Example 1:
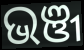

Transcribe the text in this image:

ଭଞ୍ଜ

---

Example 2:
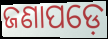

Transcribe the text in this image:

ଜଣାପଡ଼େ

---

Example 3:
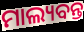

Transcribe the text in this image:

ମାଲ୍ୟବନ୍ତ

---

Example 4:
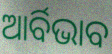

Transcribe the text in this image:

ଆର୍ବିଭାବ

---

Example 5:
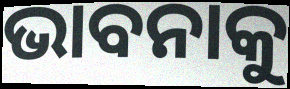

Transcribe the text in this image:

ଭାବନାକୁ